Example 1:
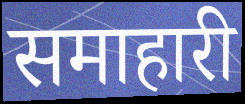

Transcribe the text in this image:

समाहारी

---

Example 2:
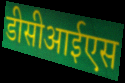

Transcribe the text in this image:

डीसीआईएस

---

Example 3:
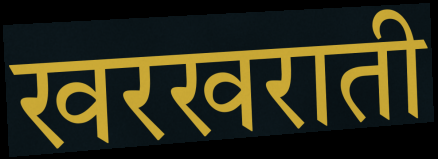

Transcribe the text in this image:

खरखराती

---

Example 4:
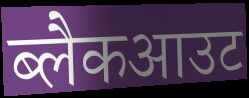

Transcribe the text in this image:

ब्लैकआउट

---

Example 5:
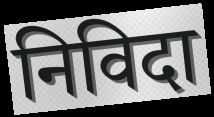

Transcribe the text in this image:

निविदा